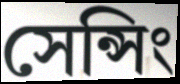
সেন্সিং